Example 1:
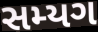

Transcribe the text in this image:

સમ્યગ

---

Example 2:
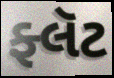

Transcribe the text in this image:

ફ્લૅટ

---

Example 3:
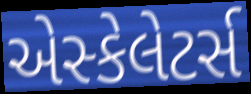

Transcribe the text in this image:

એસ્કેલેટર્સ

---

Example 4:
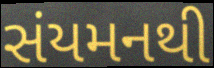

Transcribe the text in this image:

સંયમનથી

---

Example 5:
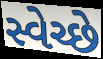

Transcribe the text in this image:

સ્વેચ્છે